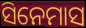
ସିନେମାସ